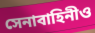
সেনাবাহিনীও